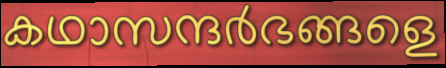
കഥാസന്ദർഭങ്ങളെ